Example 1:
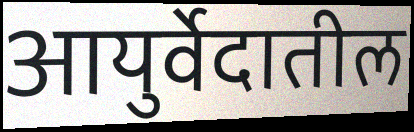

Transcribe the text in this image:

आयुर्वेदातील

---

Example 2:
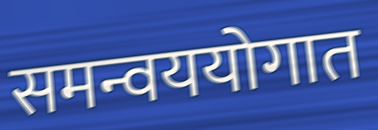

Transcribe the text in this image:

समन्वययोगात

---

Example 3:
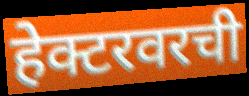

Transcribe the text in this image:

हेक्टरवरची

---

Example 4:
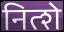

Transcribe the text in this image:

नित्शे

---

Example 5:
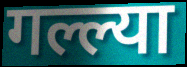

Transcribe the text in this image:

गल्ल्या